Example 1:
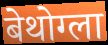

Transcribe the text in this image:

बेथोग्ला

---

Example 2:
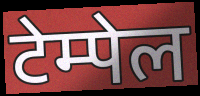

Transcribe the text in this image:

टेम्पेल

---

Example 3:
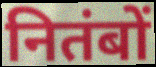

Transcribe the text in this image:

नितंबों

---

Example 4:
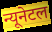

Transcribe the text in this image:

न्यूनेटल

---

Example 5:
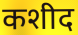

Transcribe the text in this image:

कशीद